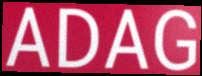
ADAG